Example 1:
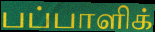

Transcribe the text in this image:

பப்பாளிக்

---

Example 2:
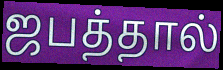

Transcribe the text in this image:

ஜபத்தால்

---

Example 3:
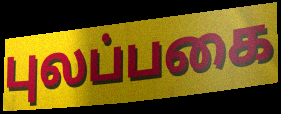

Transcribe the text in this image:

புலப்பகை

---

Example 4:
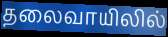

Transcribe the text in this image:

தலைவாயிலில்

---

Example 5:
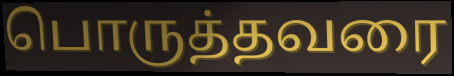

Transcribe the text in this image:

பொருத்தவரை